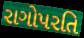
રાગોપરતિ